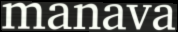
manava